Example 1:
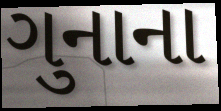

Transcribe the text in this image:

ગુનાના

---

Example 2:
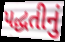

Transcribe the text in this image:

પદ્ધતીનું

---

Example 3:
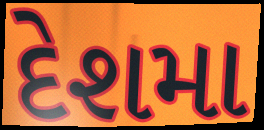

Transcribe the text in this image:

દેશમા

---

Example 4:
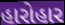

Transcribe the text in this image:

હારોહાર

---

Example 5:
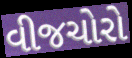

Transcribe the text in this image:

વીજચોરો